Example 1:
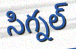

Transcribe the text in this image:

సిగ్నల్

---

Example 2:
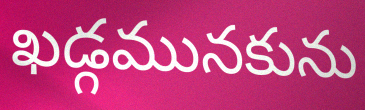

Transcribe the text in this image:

ఖడ్గమునకును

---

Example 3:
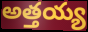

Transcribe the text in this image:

అత్తయ్య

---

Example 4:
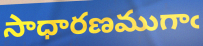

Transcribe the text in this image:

సాధారణముగాఁ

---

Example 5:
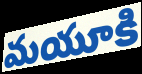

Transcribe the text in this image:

మయూకి